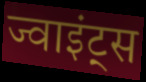
ज्वाइंट्स